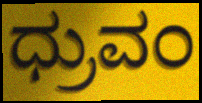
ಧ್ರುವಂ